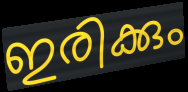
ഇരിക്കും